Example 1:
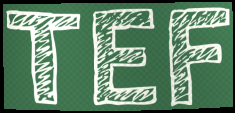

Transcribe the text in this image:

TEF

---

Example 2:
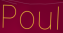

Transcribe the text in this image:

Poul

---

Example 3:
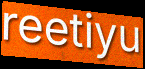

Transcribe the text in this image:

reetiyu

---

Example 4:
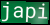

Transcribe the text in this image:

japi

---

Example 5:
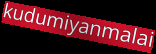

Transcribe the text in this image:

kudumiyanmalai